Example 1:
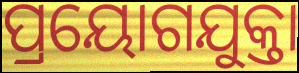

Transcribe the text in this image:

ପ୍ରୟୋଗଯୁକ୍ତା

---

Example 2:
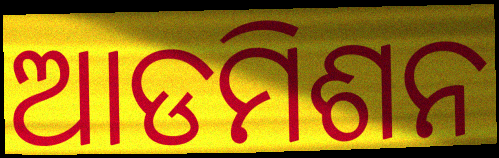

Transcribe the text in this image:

ଆଡମିଶନ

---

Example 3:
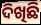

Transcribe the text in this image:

ଦିଖିଛି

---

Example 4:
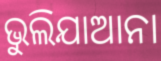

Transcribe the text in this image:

ଭୁଲିଯାଆନା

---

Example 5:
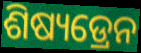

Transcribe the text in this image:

ଶିଷ୍ୟଡ୍ରେନ